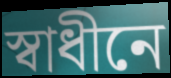
স্বাধীনে